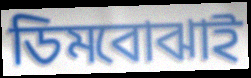
ডিমবোঝাই